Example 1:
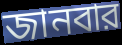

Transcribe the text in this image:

জানবার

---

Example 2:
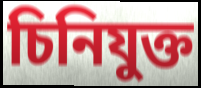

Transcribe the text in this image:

চিনিযুক্ত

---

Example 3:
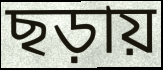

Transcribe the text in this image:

ছড়ায়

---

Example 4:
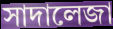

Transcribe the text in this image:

সাদালেজা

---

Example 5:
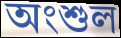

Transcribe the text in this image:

অংশুল